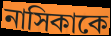
নাসিকাকে